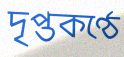
দৃপ্তকণ্ঠে